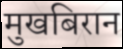
मुखबिरान